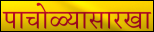
पाचोळ्यासारखा